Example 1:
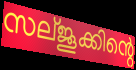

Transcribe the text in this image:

സല്ജൂക്കിന്റെ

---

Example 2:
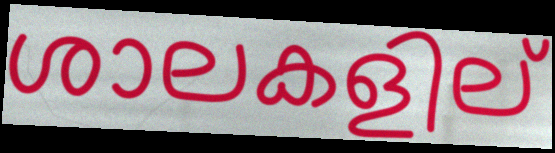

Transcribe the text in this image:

ശാലകളില്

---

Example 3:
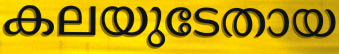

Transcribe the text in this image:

കലയുടേതായ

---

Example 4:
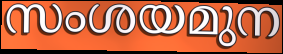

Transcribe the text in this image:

സംശയമുന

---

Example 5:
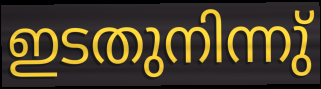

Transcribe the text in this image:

ഇടതുനിന്നു്